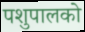
पशुपालको